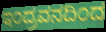
ಇಂದ್ರವನದಿಂದ